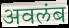
अवलंब